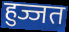
हुज्जत